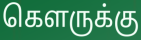
கௌருக்கு